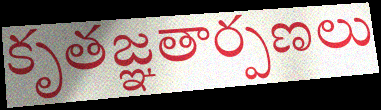
కృతజ్ఞతార్పణలు